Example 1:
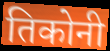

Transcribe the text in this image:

तिकोनी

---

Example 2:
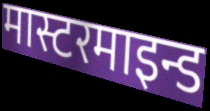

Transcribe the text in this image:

मास्टरमाइन्ड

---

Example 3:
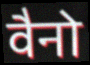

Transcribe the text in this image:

वैनो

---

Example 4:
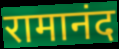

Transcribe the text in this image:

रामानंद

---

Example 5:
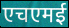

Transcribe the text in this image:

एचएमई